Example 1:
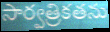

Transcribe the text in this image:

సార్వత్రికతను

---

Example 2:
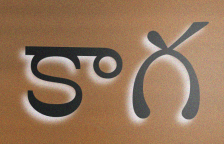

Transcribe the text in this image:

కాగ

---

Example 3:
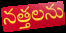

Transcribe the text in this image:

నత్తలను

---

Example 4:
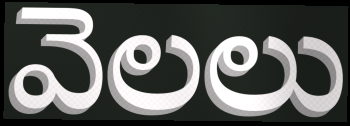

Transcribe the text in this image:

వెలలు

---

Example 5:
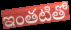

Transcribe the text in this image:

ఇంతటితో